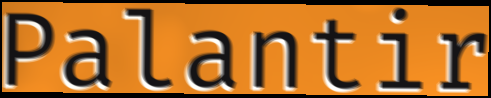
Palantir